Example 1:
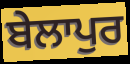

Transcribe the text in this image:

ਬੇਲਾਪੁਰ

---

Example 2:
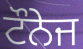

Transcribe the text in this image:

ਟੌਨੇਜ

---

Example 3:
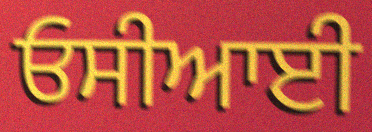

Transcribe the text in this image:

ਓਸੀਆਈ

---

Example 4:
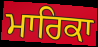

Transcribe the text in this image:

ਮਾਰਿਕਾ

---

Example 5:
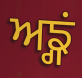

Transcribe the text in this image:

ਅਙ੍ਗਂ